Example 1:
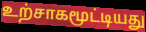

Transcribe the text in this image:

உற்சாகமூட்டியது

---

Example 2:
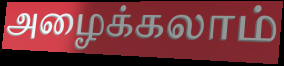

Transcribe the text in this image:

அழைக்கலாம்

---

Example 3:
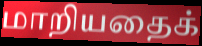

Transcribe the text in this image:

மாறியதைக்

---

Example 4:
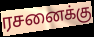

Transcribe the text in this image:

ரசனைக்கு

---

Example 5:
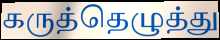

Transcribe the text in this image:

கருத்தெழுத்து